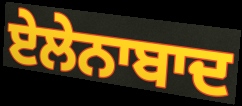
ਏਲੇਨਾਬਾਦ